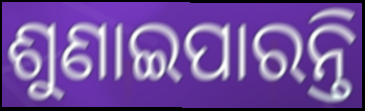
ଶୁଣାଇପାରନ୍ତି